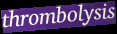
thrombolysis